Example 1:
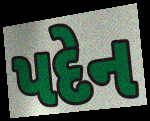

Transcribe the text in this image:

પદેન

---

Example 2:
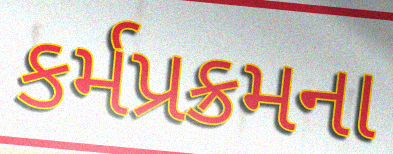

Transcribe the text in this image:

કર્મપ્રક્રમના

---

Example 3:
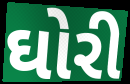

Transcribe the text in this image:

ઘોરી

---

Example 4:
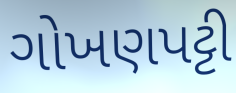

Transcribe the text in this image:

ગોખણપટ્ટી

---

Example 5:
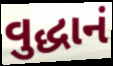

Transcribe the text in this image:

વુદ્ધાનં